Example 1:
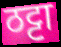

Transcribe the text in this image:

ठट्टा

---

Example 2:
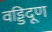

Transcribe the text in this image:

वड्डिदूण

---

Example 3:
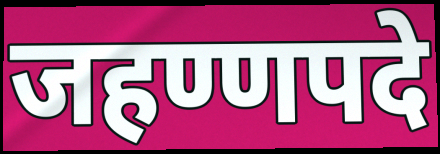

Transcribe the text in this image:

जहण्णपदे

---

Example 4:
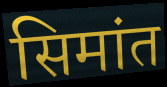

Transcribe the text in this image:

सिमांत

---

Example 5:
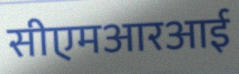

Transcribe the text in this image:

सीएमआरआई